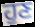
ਹੁਣ